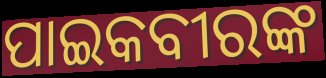
ପାଇକବୀରଙ୍କ